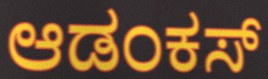
ಆಡಂಕಸ್